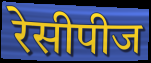
रेसीपीज